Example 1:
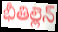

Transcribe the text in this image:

భీతిల్లెన్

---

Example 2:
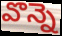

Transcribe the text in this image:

వొన్నె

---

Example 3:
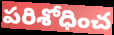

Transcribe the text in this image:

పరిశోధించ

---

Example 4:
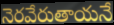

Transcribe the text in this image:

నెరవేరుతాయనే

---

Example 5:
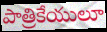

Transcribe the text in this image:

పాత్రికేయులూ